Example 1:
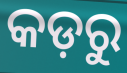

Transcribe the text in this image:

କଡ଼ରୁ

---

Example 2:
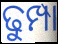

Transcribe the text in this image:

ଢୁମ୍ପା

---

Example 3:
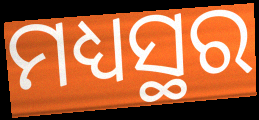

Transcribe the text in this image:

ମଧ୍ୟସ୍ଥର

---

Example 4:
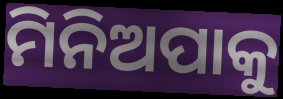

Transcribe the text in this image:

ମିନିଅପାକୁ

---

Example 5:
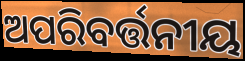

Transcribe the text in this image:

ଅପରିବର୍ତ୍ତନୀୟ